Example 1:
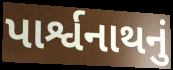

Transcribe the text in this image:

પાર્શ્વનાથનું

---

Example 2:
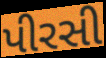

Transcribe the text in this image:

પીરસી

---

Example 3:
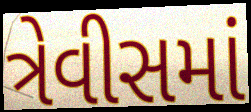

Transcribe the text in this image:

ત્રેવીસમાં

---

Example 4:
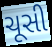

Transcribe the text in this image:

ચૂસી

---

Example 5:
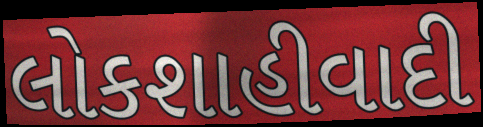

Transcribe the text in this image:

લોકશાહીવાદી